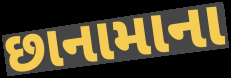
છાનામાના